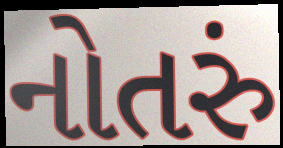
નોતરું